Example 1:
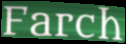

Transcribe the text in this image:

Farch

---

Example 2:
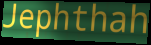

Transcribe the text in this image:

Jephthah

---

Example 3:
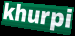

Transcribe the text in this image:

khurpi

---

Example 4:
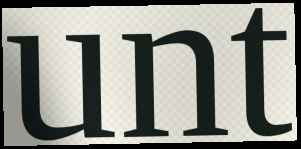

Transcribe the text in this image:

unt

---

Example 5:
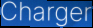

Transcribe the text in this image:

Charger